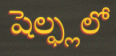
షెల్ఫ్లలో